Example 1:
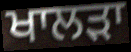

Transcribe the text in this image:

ਖਾਲੜਾ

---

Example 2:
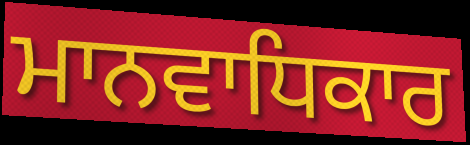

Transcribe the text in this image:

ਮਾਨਵਾਧਿਕਾਰ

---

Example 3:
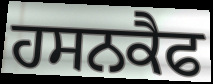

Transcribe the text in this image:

ਹਸਨਕੈਫ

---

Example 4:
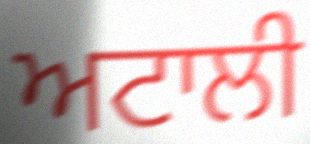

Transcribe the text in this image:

ਅਟਾਲੀ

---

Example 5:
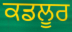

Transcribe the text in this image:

ਕਡਲੂਰ